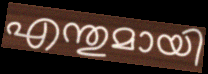
എന്തുമായി